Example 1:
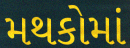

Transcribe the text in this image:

મથકોમાં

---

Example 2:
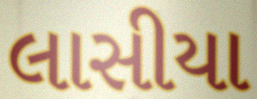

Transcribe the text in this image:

લાસીયા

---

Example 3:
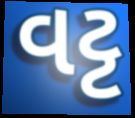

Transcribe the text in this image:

વટ્ટ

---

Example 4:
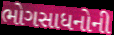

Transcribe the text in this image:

ભોગસાધનોની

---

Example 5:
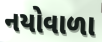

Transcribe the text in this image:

નયોવાળા